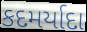
કદમર્યાદા